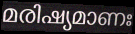
മരിഷ്യമാണഃ